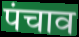
पंचाव